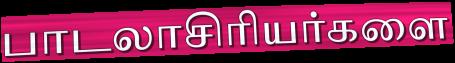
பாடலாசிரியர்களை